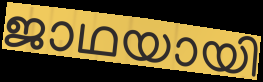
ജാഥയായി